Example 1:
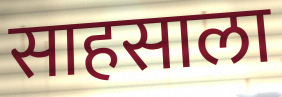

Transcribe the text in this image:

साहसाला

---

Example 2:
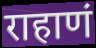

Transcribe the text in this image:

राहाणं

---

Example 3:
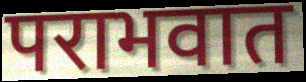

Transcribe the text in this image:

पराभवात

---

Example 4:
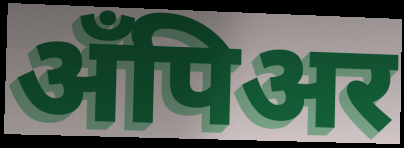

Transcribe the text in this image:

अँपिअर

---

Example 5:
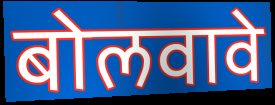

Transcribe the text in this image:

बोलवावे